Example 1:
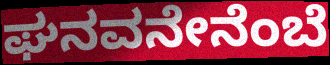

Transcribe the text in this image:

ಘನವನೇನೆಂಬೆ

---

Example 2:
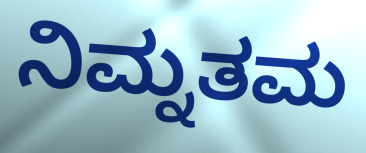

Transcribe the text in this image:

ನಿಮ್ನತಮ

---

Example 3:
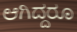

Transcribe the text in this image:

ಆಗಿದ್ದರೂ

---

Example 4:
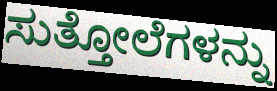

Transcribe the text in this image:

ಸುತ್ತೋಲೆಗಳನ್ನು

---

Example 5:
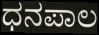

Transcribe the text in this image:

ಧನಪಾಲ